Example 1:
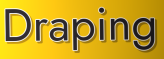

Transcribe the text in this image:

Draping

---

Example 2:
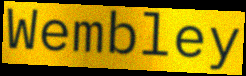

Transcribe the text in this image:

Wembley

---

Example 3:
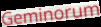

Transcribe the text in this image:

Geminorum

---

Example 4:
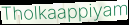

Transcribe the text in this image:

Tholkaappiyam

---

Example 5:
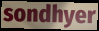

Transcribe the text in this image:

sondhyer